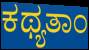
ಕಥ್ಯತಾಂ